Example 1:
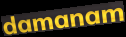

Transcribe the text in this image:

damanam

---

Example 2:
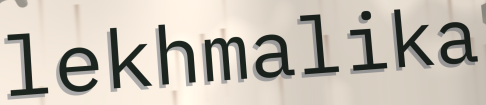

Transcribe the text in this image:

lekhmalika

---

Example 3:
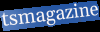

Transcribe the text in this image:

tsmagazine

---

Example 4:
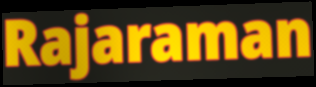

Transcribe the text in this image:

Rajaraman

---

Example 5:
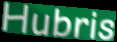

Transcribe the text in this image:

Hubris